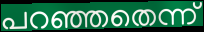
പറഞ്ഞതെന്ന്